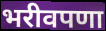
भरीवपणा